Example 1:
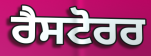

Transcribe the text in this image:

ਰੈਸਟੋਰਰ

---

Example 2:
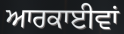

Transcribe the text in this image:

ਆਰਕਾਈਵਾਂ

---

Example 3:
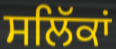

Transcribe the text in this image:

ਸਲਿੱਕਾਂ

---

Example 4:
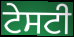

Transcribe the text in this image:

ਟੇਸਟੀ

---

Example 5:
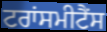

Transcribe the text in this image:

ਟਰਾਂਸਮੀਟੈਂਸ